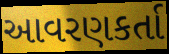
આવરણકર્તા